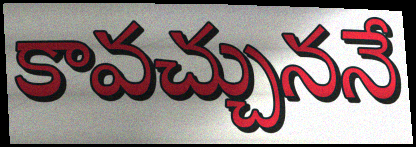
కావచ్చుననే